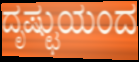
ದೃಷ್ಟುಯಂದ